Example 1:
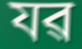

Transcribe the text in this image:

যৱ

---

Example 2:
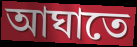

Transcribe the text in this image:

আঘাতে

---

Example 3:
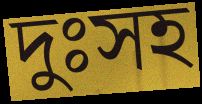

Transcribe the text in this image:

দুঃসহ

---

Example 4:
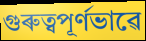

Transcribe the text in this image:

গুৰুত্বপূৰ্ণভাৱে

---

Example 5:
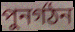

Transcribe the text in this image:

পুনৰ্গঠন